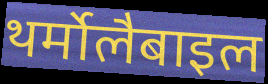
थर्मोलैबाइल